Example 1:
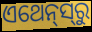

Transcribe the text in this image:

ଏଥେନ୍‌ସ୍‌ରୁ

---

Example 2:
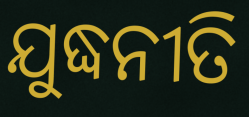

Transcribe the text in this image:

ଯୁଦ୍ଧନୀତି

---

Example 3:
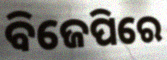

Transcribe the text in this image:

ବିଜେପିରେ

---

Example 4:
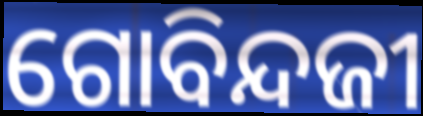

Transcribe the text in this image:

ଗୋବିନ୍ଦଜୀ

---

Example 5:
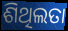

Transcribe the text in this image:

ଶିଥିଲତା